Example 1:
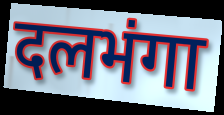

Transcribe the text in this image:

दलभंगा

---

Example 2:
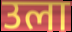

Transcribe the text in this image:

उला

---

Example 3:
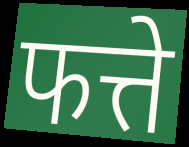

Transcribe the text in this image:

फत्ते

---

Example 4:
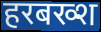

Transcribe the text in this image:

हरबख्श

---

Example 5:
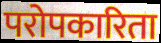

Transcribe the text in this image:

परोपकारिता